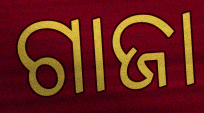
ଗାଜା